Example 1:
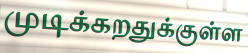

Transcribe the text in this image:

முடிக்கறதுக்குள்ள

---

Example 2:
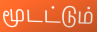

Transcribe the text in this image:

மூடட்டும்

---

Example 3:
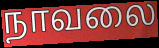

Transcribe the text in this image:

நாவலை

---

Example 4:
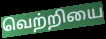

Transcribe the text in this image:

வெற்றியை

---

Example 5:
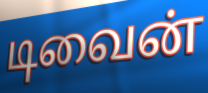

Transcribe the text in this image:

டிவைன்